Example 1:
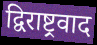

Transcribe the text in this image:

द्विराष्ट्रवाद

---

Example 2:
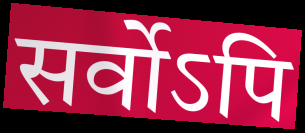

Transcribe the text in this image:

सर्वोऽपि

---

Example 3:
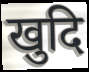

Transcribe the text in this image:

खुदि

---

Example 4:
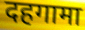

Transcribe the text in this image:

दहगामा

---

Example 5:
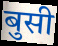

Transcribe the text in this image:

बुसी